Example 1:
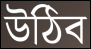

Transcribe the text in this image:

উঠিব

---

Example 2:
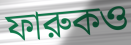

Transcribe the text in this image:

ফারুকও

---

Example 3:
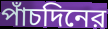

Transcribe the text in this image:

পাঁচদিনের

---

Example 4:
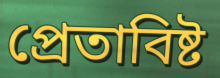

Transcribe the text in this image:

প্রেতাবিষ্ট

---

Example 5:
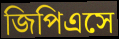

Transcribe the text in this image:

জিপিএসে